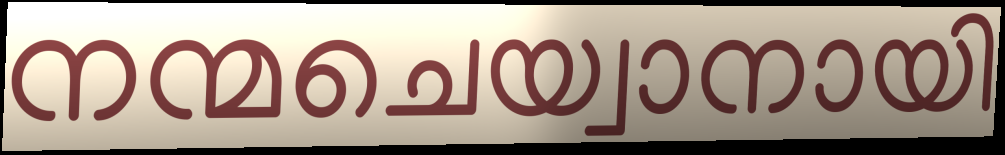
നന്മചെയ്വാനായി